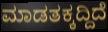
ಮಾಡತಕ್ಕದ್ದಿದೆ